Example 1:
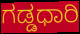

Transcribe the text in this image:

ಗಡ್ಡಧಾರಿ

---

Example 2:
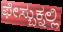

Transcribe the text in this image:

ಫೇಸ್ಬುಕ್ನಲ್ಲಿ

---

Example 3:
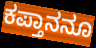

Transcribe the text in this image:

ಕಪ್ತಾನನೂ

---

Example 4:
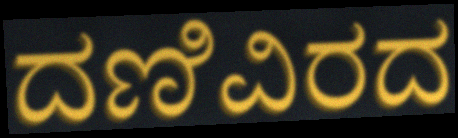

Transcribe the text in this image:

ದಣಿವಿರದ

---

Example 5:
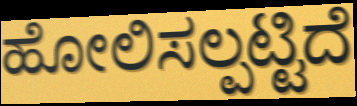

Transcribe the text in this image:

ಹೋಲಿಸಲ್ಪಟ್ಟಿದೆ